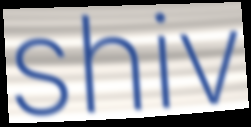
shiv